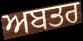
ਅਬਤਰ